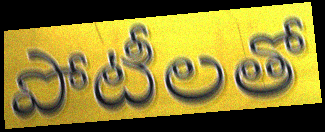
పోటీలతో